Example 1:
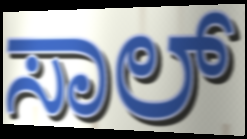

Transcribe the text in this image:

ಸಾಲ್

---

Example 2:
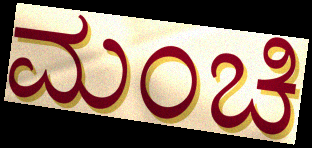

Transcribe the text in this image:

ಮಂಚಿ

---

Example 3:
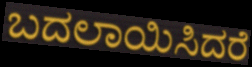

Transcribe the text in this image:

ಬದಲಾಯಿಸಿದರೆ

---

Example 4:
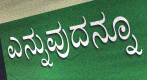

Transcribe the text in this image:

ಎನ್ನುವುದನ್ನೂ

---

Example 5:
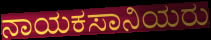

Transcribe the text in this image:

ನಾಯಕಸಾನಿಯರು